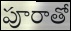
పూరాతో